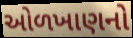
ઓળખાણનો